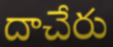
దాచేరు